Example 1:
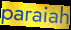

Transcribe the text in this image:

paraiah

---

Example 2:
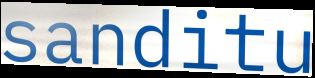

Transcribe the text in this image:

sanditu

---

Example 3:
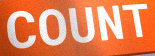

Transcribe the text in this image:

COUNT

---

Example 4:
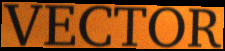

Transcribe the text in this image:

VECTOR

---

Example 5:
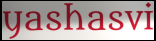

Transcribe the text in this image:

yashasvi